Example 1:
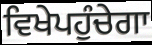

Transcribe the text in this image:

ਵਿਖੇਪਹੁੰਚੇਗਾ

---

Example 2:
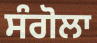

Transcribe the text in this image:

ਸੰਗੋਲਾ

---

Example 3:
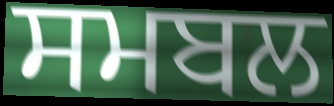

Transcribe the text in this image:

ਸਮਬਲ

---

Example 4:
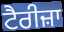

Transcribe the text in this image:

ਟੈਰੀਜ਼ਾ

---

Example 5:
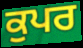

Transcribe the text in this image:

ਕੁਪਰ